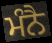
ਮੰਨੈ